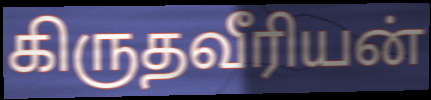
கிருதவீரியன்